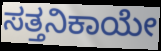
ಸತ್ತನಿಕಾಯೇ